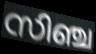
സിഞ്ച